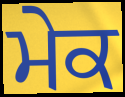
ਮੇਕ